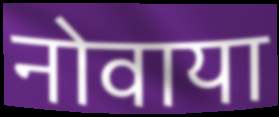
नोवाया